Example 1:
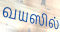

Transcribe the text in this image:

வயஸில்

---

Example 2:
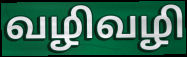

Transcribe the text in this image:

வழிவழி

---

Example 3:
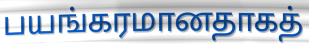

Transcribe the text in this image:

பயங்கரமானதாகத்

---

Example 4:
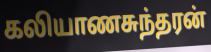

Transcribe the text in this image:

கலியாணசுந்தரன்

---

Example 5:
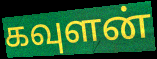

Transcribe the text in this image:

கவுளன்